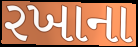
રખાના